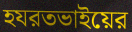
হযরতভাইয়ের